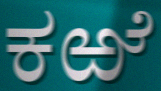
ಕಱೆ